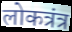
लोकत्रंत्र